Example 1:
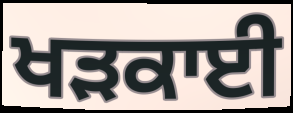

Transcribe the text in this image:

ਖੜਕਾਈ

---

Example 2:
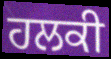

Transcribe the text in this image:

ਹਲਕੀ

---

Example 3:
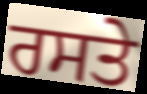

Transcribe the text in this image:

ਰਸਤੇ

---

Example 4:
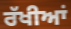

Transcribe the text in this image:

ਰੱਖੀਆਂ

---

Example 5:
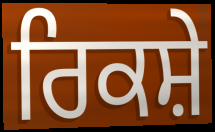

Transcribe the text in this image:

ਰਿਕਸ਼ੇ